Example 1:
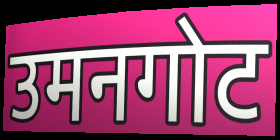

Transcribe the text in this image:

उमनगोट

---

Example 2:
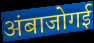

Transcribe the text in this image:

अंबाजोगई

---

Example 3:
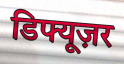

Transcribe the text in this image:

डिफ्यूज़र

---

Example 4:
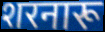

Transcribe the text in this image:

शरनारू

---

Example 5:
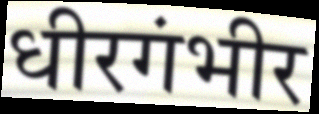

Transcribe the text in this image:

धीरगंभीर